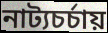
নাট্যচর্চায়